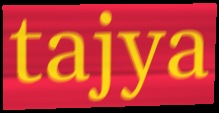
tajya